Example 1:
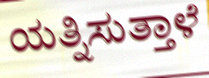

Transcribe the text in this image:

ಯತ್ನಿಸುತ್ತಾಳೆ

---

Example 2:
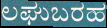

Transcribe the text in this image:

ಲಘುಬರಹ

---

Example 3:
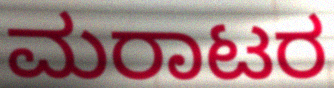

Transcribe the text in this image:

ಮರಾಟರ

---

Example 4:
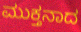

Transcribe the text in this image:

ಮುಕ್ತನಾದ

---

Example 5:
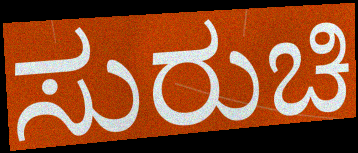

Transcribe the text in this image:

ಸುರುಚಿ